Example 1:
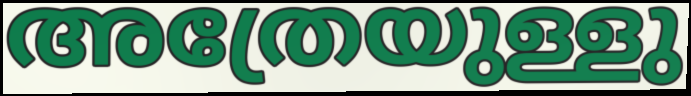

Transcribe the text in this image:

അത്രേയുള്ളു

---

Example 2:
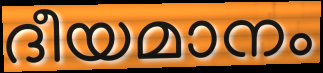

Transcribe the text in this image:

ദീയമാനം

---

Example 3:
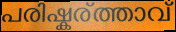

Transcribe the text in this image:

പരിഷ്കര്ത്താവ്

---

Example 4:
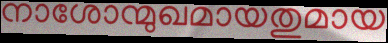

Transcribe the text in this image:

നാശോന്മുഖമായതുമായ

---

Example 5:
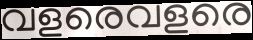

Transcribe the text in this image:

വളരെവളരെ